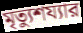
মৃত্যুশয্যার